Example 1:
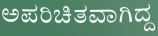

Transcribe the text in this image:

ಅಪರಿಚಿತವಾಗಿದ್ದ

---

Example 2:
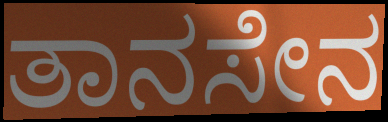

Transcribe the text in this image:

ತಾನಸೇನ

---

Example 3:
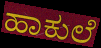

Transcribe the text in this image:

ಹಾಕುಲೆ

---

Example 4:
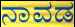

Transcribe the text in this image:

ನಾವಡ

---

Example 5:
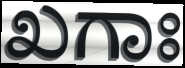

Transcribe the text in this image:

ಖಗಾಃ